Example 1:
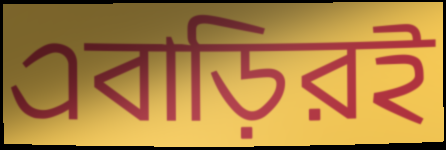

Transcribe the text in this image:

এবাড়িরই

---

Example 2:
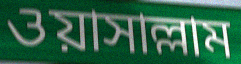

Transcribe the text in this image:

ওয়াসাল্লাম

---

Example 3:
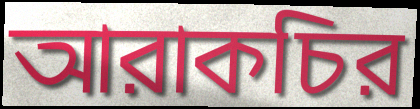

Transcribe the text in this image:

আরাকচির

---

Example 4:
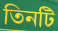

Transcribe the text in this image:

তিনটি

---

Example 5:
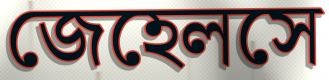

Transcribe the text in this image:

জেহেলসে